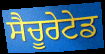
ਸੈਚੂਰੇਟੇਡ